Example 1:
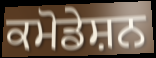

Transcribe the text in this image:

ਕਮੋਡੇਸ਼ਨ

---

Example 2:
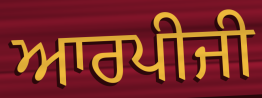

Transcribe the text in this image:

ਆਰਪੀਜੀ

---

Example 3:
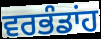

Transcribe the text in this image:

ਵਰਭੰਡਾਂਹ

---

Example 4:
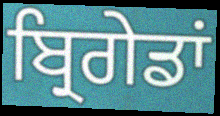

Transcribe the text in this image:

ਬ੍ਰਿਗੇਡਾਂ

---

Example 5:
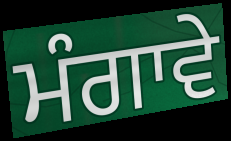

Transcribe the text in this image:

ਮੰਗਾਵੇ